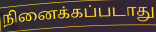
நினைக்கப்படாது